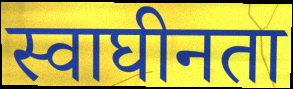
स्वाघीनता